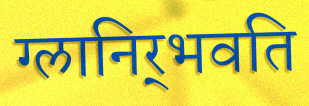
ग्लानिर्भवति